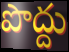
పొద్దు